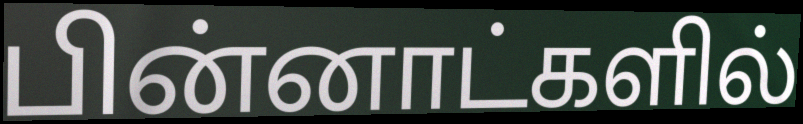
பின்னாட்களில்